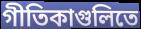
গীতিকাগুলিতে